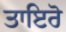
ਤਾਇਰੋ